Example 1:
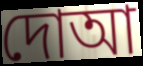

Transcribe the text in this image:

দোআ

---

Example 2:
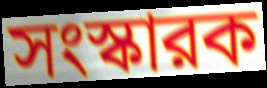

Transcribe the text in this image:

সংস্কারক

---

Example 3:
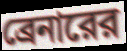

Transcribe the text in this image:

ব্রেনারের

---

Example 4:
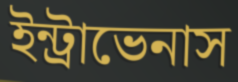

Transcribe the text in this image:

ইন্ট্রাভেনাস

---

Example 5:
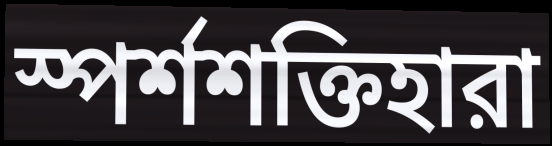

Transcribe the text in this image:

স্পর্শশক্তিহারা